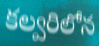
కల్వరిలోన